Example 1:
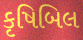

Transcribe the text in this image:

કૃષિબિલ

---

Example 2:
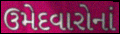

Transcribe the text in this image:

ઉમેદવારોનાં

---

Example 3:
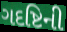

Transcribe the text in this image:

ગદષ્ટિની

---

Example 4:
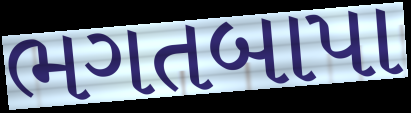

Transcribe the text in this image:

ભગતબાપા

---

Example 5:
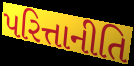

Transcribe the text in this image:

પરિત્તાનીતિ